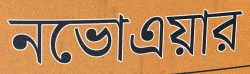
নভোএয়ার